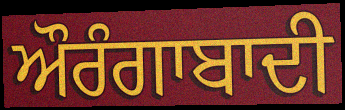
ਔਰੰਗਾਬਾਦੀ